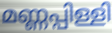
മണ്ണപ്പിള്ളി